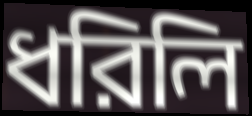
ধরিলি